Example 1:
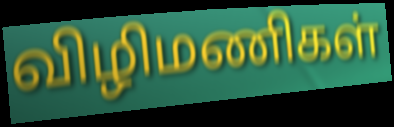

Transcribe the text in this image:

விழிமணிகள்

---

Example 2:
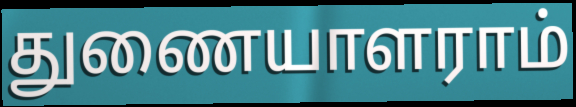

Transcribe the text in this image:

துணையாளராம்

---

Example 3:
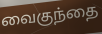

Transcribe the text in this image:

வைகுந்தை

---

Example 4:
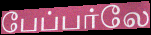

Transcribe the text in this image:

பேப்பர்லே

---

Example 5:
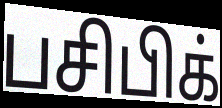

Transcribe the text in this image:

பசிபிக்